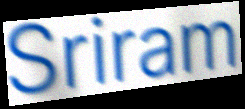
Sriram